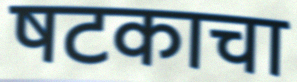
षटकाचा